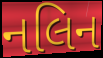
નલિન